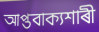
আপ্তবাক্যশাৰী